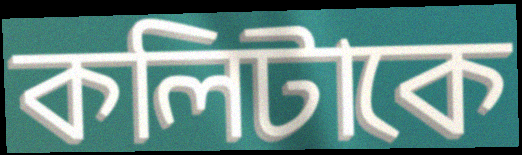
কলিটাকে